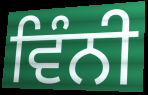
ਵਿੰਨੀ